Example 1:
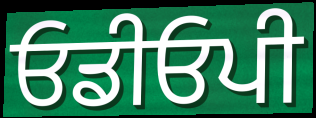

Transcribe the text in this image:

ਓਡੀਓਪੀ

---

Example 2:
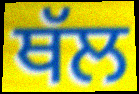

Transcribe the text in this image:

ਥੱਲ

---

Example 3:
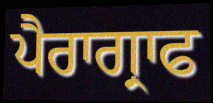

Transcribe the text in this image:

ਪੈਰਾਗ੍ਰਾਫ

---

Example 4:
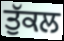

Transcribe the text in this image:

ਤੁੱਕਲ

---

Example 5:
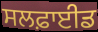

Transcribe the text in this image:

ਸਲਫ਼ਾਈਡ